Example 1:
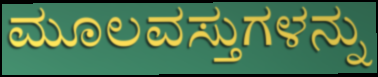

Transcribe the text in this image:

ಮೂಲವಸ್ತುಗಳನ್ನು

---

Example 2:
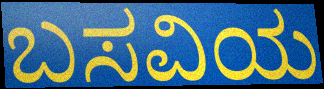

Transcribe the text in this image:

ಬಸವಿಯ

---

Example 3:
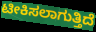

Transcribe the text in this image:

ಟೀಕಿಸಲಾಗುತ್ತಿದೆ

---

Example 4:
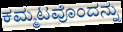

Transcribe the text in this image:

ಕಮ್ಮಟವೊಂದನ್ನು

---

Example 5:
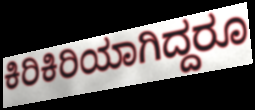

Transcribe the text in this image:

ಕಿರಿಕಿರಿಯಾಗಿದ್ದರೂ